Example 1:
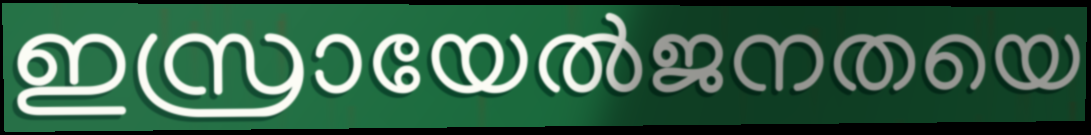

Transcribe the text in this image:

ഇസ്രായേൽജനതയെ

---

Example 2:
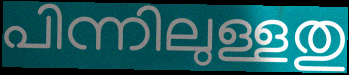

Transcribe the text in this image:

പിന്നിലുള്ളതു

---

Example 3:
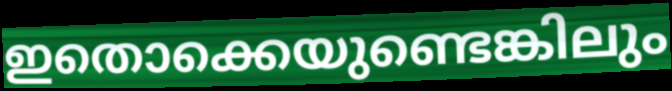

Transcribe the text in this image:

ഇതൊക്കെയുണ്ടെങ്കിലും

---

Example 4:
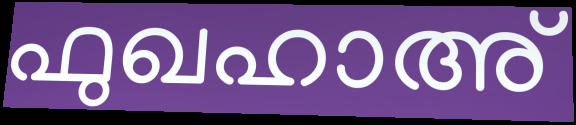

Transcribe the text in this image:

ഫുഖഹാഅ്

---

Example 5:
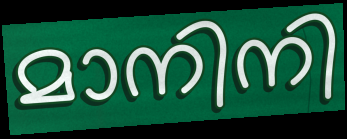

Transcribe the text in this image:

മാനിനി